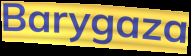
Barygaza